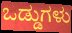
ಒಡ್ಡುಗಳು